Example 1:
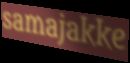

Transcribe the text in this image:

samajakke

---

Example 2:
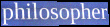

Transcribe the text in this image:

philosopher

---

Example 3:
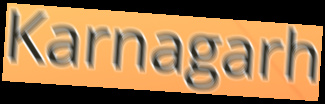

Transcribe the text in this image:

Karnagarh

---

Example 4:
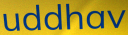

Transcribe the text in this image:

uddhav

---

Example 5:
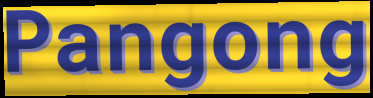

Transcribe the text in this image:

Pangong